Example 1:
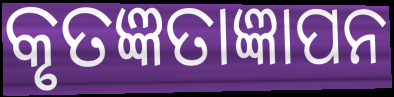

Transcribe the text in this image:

କୃତଜ୍ଞତାଜ୍ଞାପନ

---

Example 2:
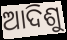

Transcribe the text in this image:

ଆଦିଶୁ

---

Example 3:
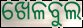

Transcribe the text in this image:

ଖେଳବୁଲ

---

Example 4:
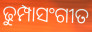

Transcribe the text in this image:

ଢୁମ୍ପାସଂଗୀତ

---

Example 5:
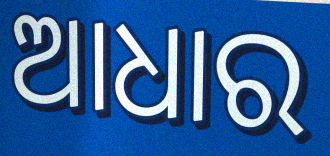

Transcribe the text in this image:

ଆଧାର